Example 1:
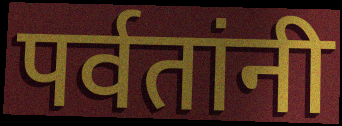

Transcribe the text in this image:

पर्वतांनी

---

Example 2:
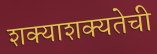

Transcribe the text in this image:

शक्याशक्यतेची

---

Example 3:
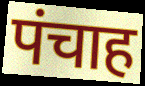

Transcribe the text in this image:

पंचाह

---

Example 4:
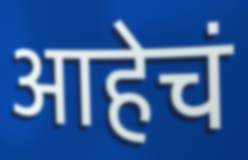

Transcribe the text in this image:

आहेचं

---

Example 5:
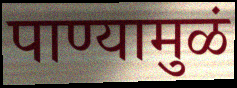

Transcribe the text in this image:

पाण्यामुळं